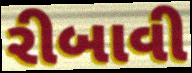
રીબાવી